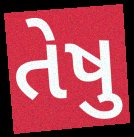
તેષુ